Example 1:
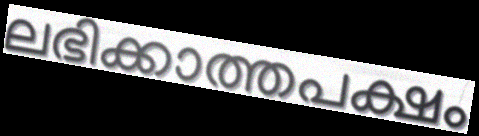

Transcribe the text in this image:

ലഭിക്കാത്തപക്ഷം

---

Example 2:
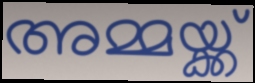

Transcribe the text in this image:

അമ്മയ്ക്ക്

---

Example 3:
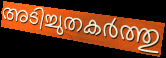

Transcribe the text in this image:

അടിച്ചുതകർത്തു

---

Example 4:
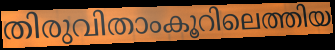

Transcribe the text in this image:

തിരുവിതാംകൂറിലെത്തിയ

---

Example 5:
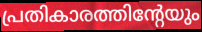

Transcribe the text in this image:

പ്രതികാരത്തിന്റേയും